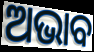
ଅଭାବ